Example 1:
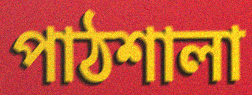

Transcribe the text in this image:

পাঠশালা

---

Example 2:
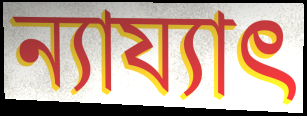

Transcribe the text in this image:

ন্যায্যাৎ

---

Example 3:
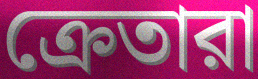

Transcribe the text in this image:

ক্রেতারা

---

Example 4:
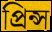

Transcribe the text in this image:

প্রিন্স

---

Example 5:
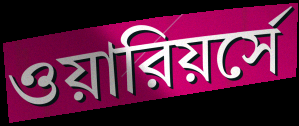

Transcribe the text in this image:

ওয়ারিয়র্সে